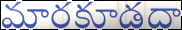
మారకూడదా